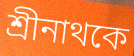
শ্রীনাথকে